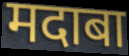
मदाबा